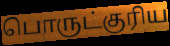
பொருட்குரிய